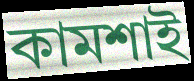
কামশাই